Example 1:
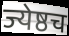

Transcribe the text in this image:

ज्येष्ठच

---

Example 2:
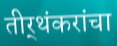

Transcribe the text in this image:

तीर्थंकरांचा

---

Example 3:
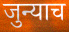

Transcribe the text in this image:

जुन्याच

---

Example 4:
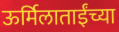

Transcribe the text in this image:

ऊर्मिलाताईंच्या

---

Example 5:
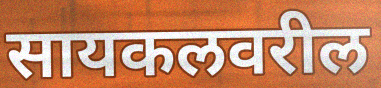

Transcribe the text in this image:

सायकलवरील